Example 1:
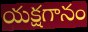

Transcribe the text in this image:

యక్షగానం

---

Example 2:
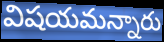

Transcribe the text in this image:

విషయమన్నారు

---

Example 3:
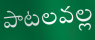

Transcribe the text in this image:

పాటలవల్ల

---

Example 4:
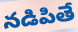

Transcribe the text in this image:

నడిపితే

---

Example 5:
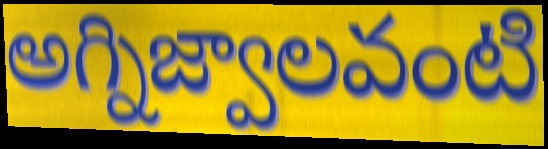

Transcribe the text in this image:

అగ్నిజ్వాలవంటి